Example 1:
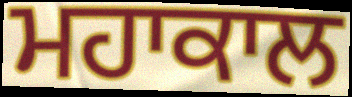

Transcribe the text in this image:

ਮਹਾਕਾਲ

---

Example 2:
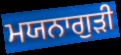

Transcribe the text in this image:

ਮਯਨਾਗੁੜੀ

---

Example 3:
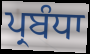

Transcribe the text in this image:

ਪ੍ਰਬੰਧਾ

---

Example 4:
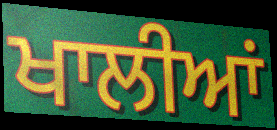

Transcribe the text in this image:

ਖਾਲੀਆਂ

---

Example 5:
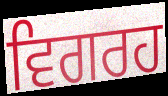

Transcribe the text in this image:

ਵਿਗਰਹ